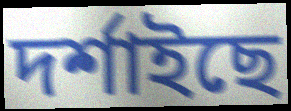
দৰ্শাইছে